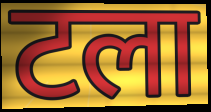
टला